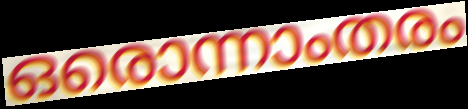
ഒരൊന്നാംതരം